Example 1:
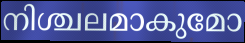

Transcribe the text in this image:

നിശ്ചലമാകുമോ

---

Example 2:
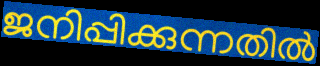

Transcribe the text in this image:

ജനിപ്പിക്കുന്നതിൽ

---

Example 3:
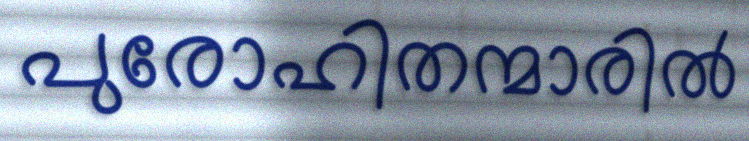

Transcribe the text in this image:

പുരോഹിതന്മാരിൽ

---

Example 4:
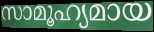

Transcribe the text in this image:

സാമൂഹ്യമായ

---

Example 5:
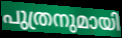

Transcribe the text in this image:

പുത്രനുമായി